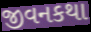
જીવનકથા